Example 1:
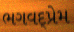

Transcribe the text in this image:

ભગવદ્પ્રેમ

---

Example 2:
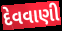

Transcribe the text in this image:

દેવવાણી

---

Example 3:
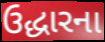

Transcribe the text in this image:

ઉદ્ધારના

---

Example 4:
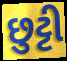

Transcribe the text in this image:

છુટ્ટી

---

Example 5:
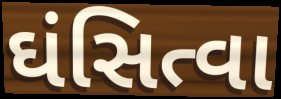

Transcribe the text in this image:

ઘંસિત્વા